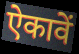
ऐकावें